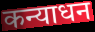
कन्याधन